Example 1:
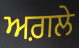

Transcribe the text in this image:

ਅਗ਼ਲੇ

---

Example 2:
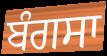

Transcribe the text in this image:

ਬੰਗਸਾ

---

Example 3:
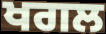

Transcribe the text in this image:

ਖਗਲ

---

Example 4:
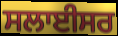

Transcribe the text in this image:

ਸਲਾਈਸਰ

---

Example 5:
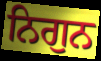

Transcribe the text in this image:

ਨਿਗੁਨ